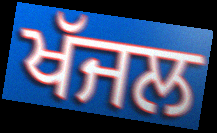
ਖੱਜਲ